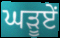
ਘੜੂਏਂ